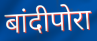
बांदीपोरा